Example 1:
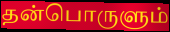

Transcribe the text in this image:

தன்பொருளும்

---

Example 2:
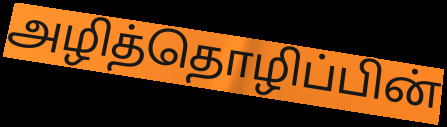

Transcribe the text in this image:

அழித்தொழிப்பின்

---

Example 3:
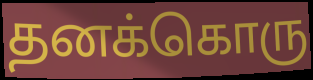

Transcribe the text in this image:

தனக்கொரு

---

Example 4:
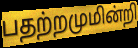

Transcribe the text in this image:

பதற்றமுமின்றி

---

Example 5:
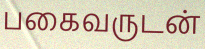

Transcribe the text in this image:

பகைவருடன்